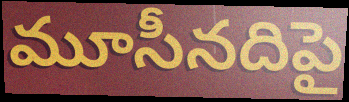
మూసీనదిపై